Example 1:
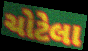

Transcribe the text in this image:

ચોટેલા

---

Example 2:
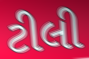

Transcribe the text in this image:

ટીલી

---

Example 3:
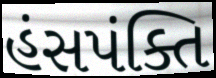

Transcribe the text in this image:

હંસપંક્તિ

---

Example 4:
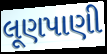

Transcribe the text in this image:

લૂણપાણી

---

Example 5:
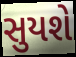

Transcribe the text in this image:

સુયશે